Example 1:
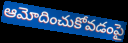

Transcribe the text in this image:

ఆమోదించుకోవడంపై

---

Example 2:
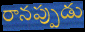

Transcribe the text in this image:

రానప్పుడు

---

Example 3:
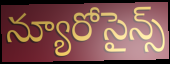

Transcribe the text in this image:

న్యూరోసైన్స్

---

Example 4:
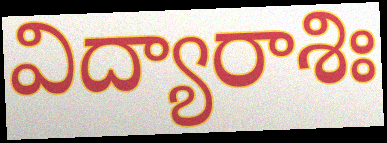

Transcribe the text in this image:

విద్యారాశిః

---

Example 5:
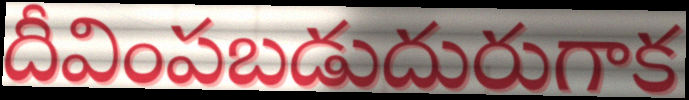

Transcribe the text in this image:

దీవింపబడుదురుగాక